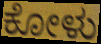
ಕೋಳು